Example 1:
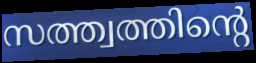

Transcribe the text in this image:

സത്ത്വത്തിന്റെ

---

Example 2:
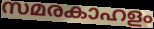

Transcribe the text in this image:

സമരകാഹളം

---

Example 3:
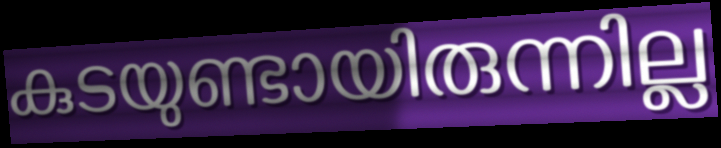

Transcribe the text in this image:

കുടയുണ്ടായിരുന്നില്ല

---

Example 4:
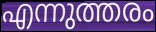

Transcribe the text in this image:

എന്നുത്തരം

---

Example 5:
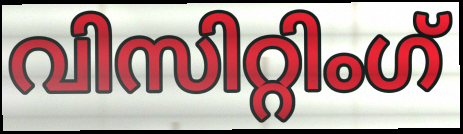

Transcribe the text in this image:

വിസിറ്റിംഗ്